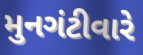
મુનગંટીવારે